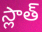
స్లాత్